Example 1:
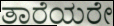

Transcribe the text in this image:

ತಾರೆಯರೇ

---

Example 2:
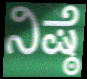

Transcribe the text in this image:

ನಿಷ್ಠೆ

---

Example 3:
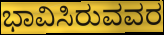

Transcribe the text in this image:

ಭಾವಿಸಿರುವವರ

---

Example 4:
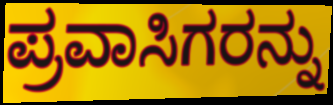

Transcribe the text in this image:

ಪ್ರವಾಸಿಗರನ್ನು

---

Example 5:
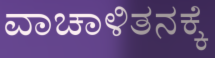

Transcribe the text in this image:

ವಾಚಾಳಿತನಕ್ಕೆ